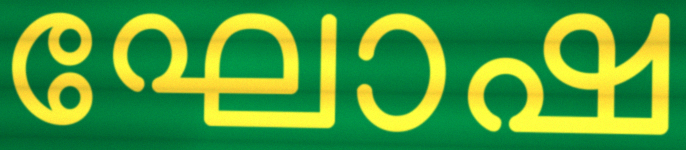
ഘോഷ